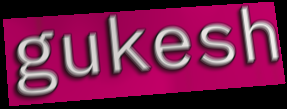
gukesh